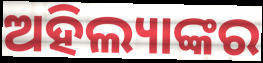
ଅହିଲ୍ୟାଙ୍କର